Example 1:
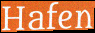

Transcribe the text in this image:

Hafen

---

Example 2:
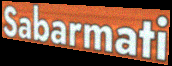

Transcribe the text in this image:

Sabarmati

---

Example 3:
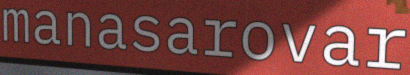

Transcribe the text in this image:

manasarovar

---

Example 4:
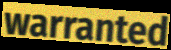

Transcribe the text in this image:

warranted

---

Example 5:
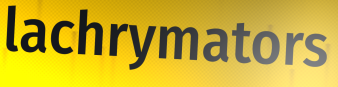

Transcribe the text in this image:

lachrymators